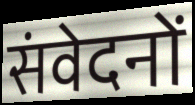
संवेदनों